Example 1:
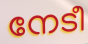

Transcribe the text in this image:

നേടീ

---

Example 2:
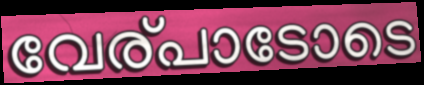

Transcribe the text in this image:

വേര്പാടോടെ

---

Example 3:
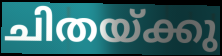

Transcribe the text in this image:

ചിതയ്ക്കു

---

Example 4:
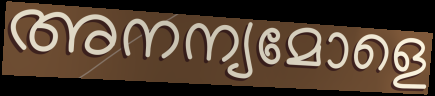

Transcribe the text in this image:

അനന്യമോളെ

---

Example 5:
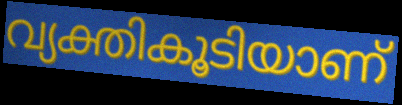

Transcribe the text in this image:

വ്യക്തികൂടിയാണ്